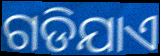
ଗଡିଯାଏ